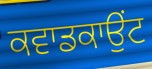
ਕਵਾਡਕਾਉਂਟ